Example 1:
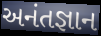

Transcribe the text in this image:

અનંતજ્ઞાન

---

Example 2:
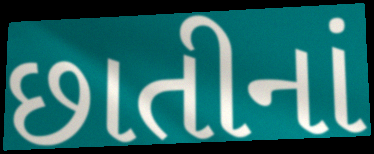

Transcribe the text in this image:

છાતીનાં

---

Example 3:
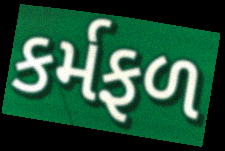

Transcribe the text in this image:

કર્મફળ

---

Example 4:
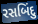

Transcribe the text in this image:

રસબિંદુ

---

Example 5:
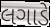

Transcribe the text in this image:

લગાડે